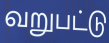
வறுபட்டு